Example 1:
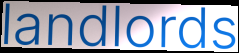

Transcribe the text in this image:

landlords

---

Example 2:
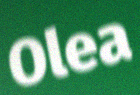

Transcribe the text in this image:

Olea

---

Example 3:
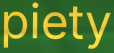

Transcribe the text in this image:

piety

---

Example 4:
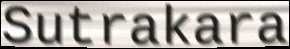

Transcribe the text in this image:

Sutrakara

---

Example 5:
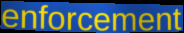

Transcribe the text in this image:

enforcement